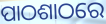
ପାଠଶାଠରେ